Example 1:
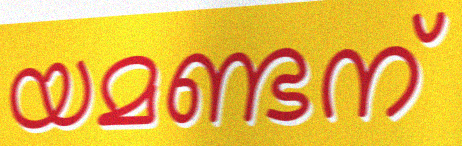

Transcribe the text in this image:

യമണ്ടന്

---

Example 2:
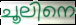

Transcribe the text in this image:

ചൂലിനെ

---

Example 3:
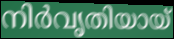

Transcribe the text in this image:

നിർവൃതിയായ്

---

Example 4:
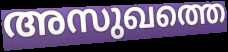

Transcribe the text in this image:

അസുഖത്തെ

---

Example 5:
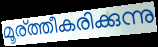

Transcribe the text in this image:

മൂര്ത്തീകരിക്കുന്നു